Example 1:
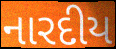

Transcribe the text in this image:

નારદીય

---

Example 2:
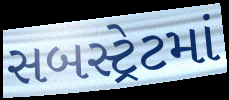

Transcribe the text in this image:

સબસ્ટ્રેટમાં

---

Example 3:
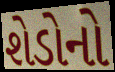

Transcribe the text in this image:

શેડોનો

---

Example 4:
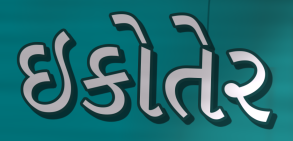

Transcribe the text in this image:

ઇકોતેર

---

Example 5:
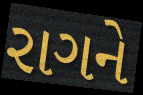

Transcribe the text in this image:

રાગને